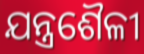
ଯନ୍ତ୍ରଶୈଳୀ